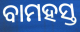
ବାମହସ୍ତ